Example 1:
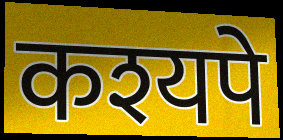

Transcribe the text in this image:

कश्यपे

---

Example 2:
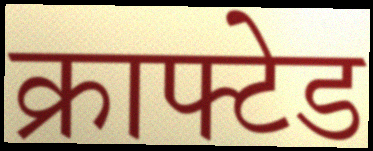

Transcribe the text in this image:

क्राफ्टेड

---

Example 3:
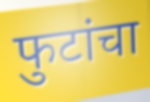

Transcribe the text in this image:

फुटांचा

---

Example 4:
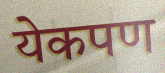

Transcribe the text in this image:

येकपण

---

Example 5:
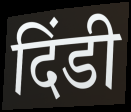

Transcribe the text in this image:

दिंडी